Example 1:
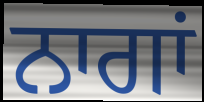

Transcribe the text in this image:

ਨਾਗਾਂ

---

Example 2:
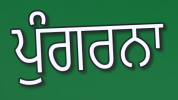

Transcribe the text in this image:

ਪੁੰਗਰਨਾ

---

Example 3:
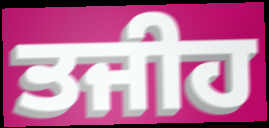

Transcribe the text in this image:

ਤਜੀਹ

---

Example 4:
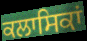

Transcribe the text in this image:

ਕਲਾਸਿਕਾਂ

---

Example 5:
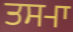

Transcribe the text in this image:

ਤਸ੍ਮਾ